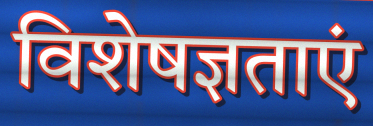
विशेषज्ञताएं